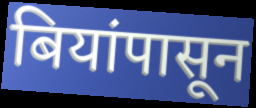
बियांपासून